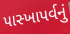
પાસ્ખાપર્વનું